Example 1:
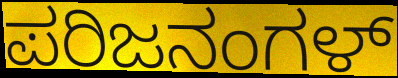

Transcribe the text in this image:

ಪರಿಜನಂಗಳ್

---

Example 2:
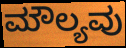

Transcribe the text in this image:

ಮೌಲ್ಯವು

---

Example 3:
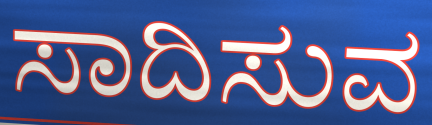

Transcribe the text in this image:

ಸಾದಿಸುವ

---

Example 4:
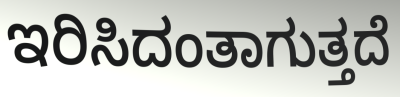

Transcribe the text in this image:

ಇರಿಸಿದಂತಾಗುತ್ತದೆ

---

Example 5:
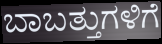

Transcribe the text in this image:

ಬಾಬತ್ತುಗಳಿಗೆ